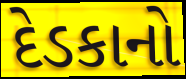
દેડકાનો